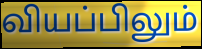
வியப்பிலும்